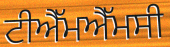
ਟੀਐੱਮਐੱਮਸੀ